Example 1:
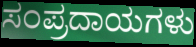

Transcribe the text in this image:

ಸಂಪ್ರದಾಯಗಳು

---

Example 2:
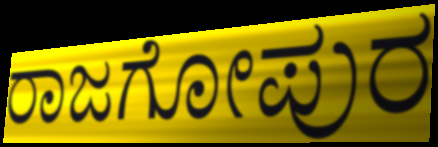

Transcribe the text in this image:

ರಾಜಗೋಪುರ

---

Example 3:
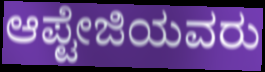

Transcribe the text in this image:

ಆಪ್ಟೇಜಿಯವರು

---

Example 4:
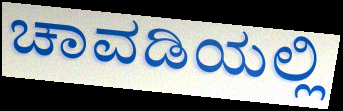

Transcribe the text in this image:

ಚಾವಡಿಯಲ್ಲಿ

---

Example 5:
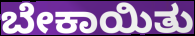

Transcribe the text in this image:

ಬೇಕಾಯಿತು